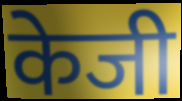
केजी